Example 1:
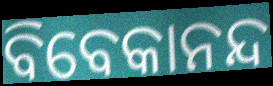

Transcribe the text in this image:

ବିବେକାନନ୍ଦ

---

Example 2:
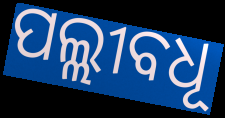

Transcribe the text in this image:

ପଲ୍ଲୀବଧୂ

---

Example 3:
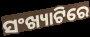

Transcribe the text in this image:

ସଂଖ୍ୟାଟିରେ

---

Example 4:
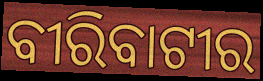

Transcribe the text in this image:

ବୀରିବାଟୀର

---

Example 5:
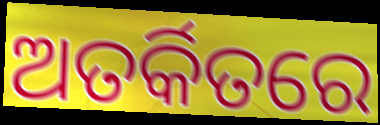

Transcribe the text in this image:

ଅତର୍କିତରେ